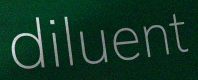
diluent